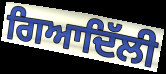
ਗਿਆਦਿੱਲੀ